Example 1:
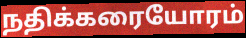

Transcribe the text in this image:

நதிக்கரையோரம்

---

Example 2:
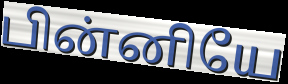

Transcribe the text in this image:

பின்னியே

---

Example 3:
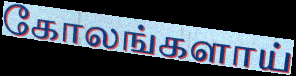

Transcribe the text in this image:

கோலங்களாய்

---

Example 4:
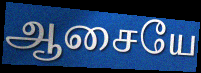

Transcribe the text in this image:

ஆசையே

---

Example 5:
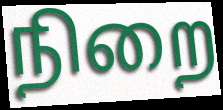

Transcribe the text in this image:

நிறை